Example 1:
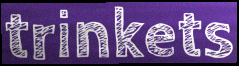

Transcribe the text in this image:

trinkets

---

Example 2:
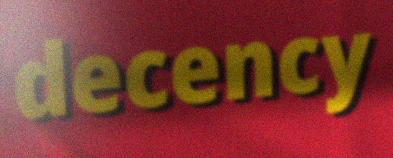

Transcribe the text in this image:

decency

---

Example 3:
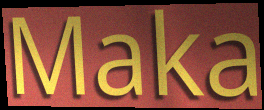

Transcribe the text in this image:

Maka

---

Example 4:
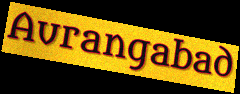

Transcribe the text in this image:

Aurangabad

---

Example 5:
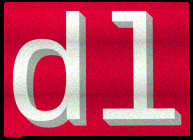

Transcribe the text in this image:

dl